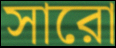
সারো